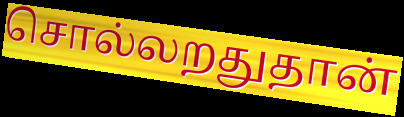
சொல்லறதுதான்